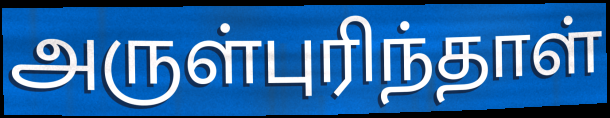
அருள்புரிந்தாள்